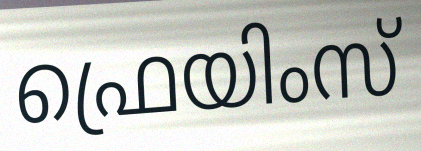
ഫ്രെയിംസ്